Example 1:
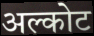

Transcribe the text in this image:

अल्कोट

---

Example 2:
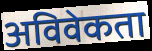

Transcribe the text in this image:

अविवेकता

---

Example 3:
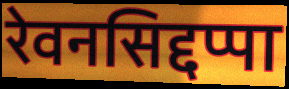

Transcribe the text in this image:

रेवनसिद्दप्पा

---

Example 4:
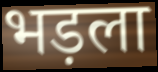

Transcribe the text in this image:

भड़ला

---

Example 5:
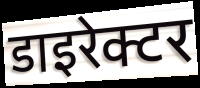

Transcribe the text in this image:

डाइरेक्टर